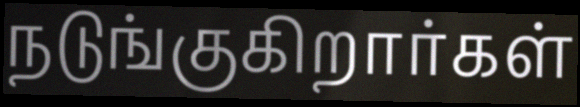
நடுங்குகிறார்கள்